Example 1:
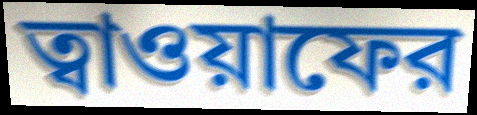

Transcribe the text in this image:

ত্বাওয়াফের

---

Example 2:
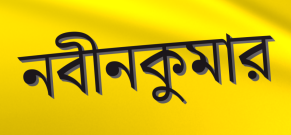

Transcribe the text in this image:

নবীনকুমার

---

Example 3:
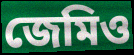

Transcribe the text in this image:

জেমিও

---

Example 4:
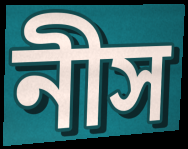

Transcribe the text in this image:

নীস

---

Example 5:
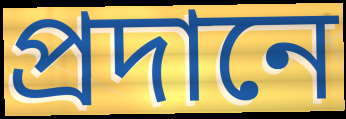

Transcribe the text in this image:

প্রদানে